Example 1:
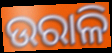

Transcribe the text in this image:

ଉରାଳି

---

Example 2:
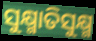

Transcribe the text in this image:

ସୁକ୍ଷ୍ମାତିସୁକ୍ଷ୍ମ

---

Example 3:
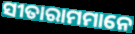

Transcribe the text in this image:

ସୀତାରାମମାନେ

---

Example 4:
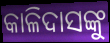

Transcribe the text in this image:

କାଳିଦାସଙ୍କୁ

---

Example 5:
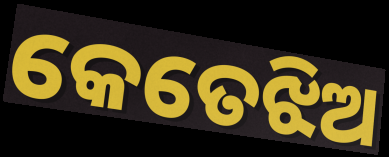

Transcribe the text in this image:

କେତେଝିଅ